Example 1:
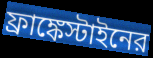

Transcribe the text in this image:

ফ্রাঙ্কেস্টাইনের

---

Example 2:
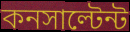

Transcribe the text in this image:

কনসাল্টেন্ট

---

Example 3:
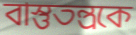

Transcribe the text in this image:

বাস্তুতন্ত্রকে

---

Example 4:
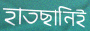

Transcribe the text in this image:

হাতছানিই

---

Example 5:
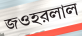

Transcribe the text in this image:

জওহরলাল